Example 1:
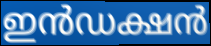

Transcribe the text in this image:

ഇൻഡക്ഷൻ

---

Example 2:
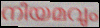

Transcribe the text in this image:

നിയമവും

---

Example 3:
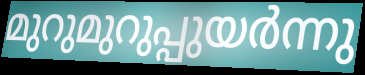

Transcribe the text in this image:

മുറുമുറുപ്പുയർന്നു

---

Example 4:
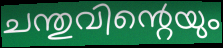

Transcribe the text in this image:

ചന്തുവിന്റെയും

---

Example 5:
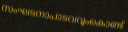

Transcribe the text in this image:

സംഘടനാപാടവവുംകൊണ്ട്